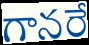
గానరే